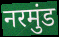
नरमुंड